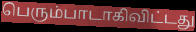
பெரும்பாடாகிவிட்டது